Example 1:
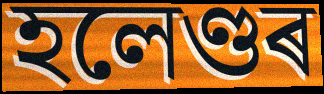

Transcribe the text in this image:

হলেণ্ডৰ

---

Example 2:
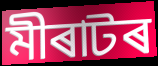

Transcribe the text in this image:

মীৰাটৰ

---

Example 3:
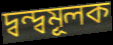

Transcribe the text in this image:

দ্বন্দ্বমূলক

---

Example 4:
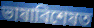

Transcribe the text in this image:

ভাষাবিশেষত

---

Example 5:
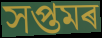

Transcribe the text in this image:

সপ্তমৰ